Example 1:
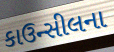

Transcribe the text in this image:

કાઉન્સીલના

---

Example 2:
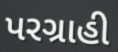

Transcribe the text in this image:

પરગ્રાહી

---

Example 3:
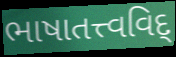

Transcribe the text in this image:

ભાષાતત્ત્વવિદ્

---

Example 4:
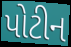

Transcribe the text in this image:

પોટીન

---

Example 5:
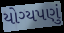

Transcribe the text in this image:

યોગ્યપણું